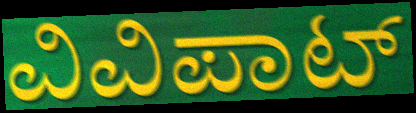
ವಿವಿಪಾಟ್